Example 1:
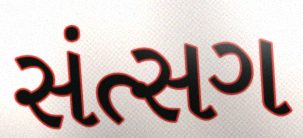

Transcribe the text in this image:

સંત્સગ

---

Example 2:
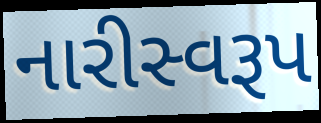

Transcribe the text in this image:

નારીસ્વરૂપ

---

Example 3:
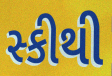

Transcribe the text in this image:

સ્કીથી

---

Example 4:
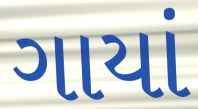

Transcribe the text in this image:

ગાયાં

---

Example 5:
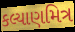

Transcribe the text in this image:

કલ્યાણમિત્ર